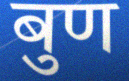
बुण